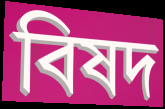
বিষদ